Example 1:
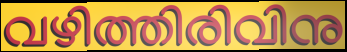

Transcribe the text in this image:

വഴിത്തിരിവിനു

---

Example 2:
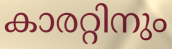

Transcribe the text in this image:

കാരറ്റിനും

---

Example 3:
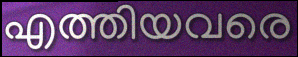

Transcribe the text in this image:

എത്തിയവരെ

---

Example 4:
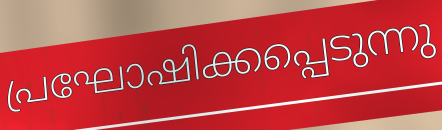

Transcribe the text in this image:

പ്രഘോഷിക്കപ്പെടുന്നു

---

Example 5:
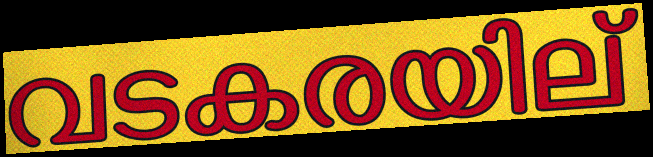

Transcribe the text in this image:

വടകരയില്